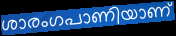
ശാരംഗപാണിയാണ്